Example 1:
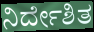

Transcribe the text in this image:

ನಿರ್ದೇಶಿತ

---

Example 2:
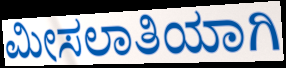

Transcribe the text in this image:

ಮೀಸಲಾತಿಯಾಗಿ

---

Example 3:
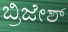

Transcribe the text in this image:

ಬ್ರಿಜೇಶ್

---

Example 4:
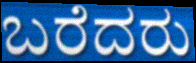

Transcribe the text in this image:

ಬರೆದರು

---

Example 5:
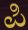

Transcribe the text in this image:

ಪಿ